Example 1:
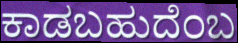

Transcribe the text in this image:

ಕಾಡಬಹುದೆಂಬ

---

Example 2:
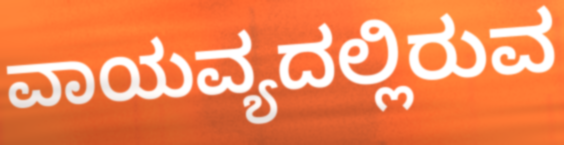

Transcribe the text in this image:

ವಾಯವ್ಯದಲ್ಲಿರುವ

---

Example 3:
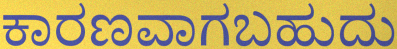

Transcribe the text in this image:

ಕಾರಣವಾಗಬಹುದು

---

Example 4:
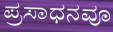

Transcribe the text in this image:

ಪ್ರಸಾಧನವೂ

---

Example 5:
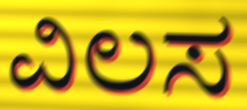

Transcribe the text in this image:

ವಿಲಸ